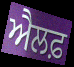
ਐਲਫ਼